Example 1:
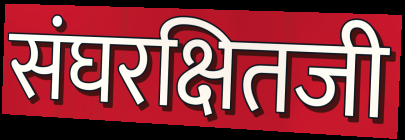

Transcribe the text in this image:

संघरक्षितजी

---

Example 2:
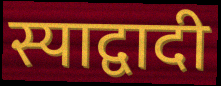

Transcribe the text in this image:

स्याद्वादी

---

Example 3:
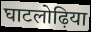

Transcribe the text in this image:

घाटलोढ़िया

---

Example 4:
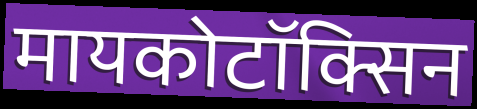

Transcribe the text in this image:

मायकोटॉक्सिन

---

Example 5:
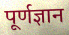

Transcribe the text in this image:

पूर्णज्ञान